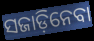
ସଜାଡ଼ିନେବା